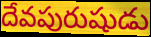
దేవపురుషుడు